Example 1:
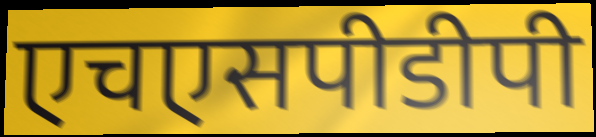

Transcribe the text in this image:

एचएसपीडीपी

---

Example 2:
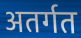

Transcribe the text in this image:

अतर्गत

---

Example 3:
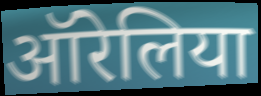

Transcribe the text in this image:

ऑरेलिया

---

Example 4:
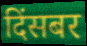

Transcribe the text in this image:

दिंसबर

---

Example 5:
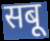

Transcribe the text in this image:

सबू